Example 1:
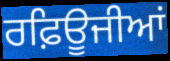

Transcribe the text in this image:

ਰਫ਼ਿਊਜੀਆਂ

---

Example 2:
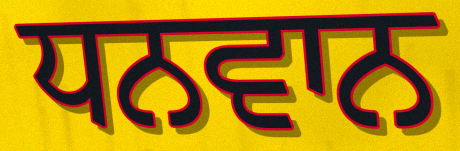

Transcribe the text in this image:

ਧਨਵਾਨ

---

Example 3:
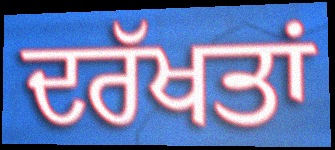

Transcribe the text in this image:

ਦਰੱਖਤਾਂ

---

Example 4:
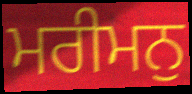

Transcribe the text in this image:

ਮਰੀਮਨੁ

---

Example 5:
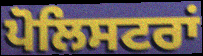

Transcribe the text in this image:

ਪੋਲਿਸਟਰਾਂ